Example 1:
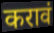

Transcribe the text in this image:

करावं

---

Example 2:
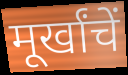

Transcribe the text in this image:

मूर्खांचें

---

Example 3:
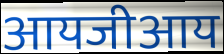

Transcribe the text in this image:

आयजीआय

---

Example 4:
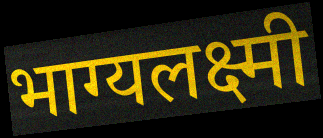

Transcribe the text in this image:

भाग्यलक्ष्मी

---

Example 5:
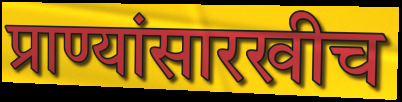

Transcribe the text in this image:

प्राण्यांसारखीच